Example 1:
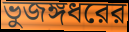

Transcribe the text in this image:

ভুজঙ্গধরের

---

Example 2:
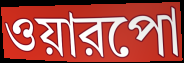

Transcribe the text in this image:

ওয়ারপো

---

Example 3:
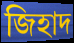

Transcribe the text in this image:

জিহাদ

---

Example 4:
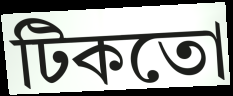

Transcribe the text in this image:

টিকতো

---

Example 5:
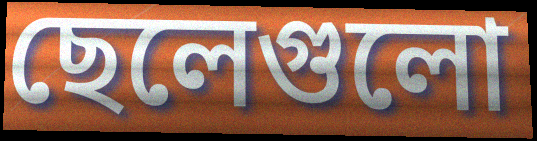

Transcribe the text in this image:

ছেলেগুলো